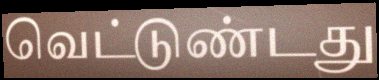
வெட்டுண்டது